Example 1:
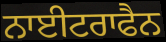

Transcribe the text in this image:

ਨਾਈਟਰਾਫੈਨ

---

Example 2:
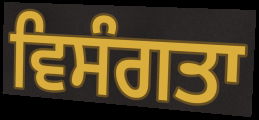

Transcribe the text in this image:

ਵਿਸੰਗਤਾ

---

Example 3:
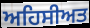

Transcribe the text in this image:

ਅਹਿਸੀਅਤ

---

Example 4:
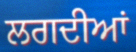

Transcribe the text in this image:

ਲਗਦੀਆਂ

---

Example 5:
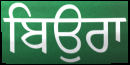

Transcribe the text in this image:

ਬਿਉਰਾ